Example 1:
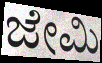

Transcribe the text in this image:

ಜೇಮಿ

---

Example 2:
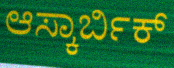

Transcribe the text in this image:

ಆಸ್ಕಾರ್ಬಿಕ್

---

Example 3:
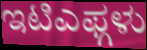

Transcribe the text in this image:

ಇಟಿಎಫ್ಗಳು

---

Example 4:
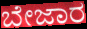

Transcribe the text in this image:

ಬೇಜಾರ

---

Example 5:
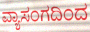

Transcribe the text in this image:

ವ್ಯಾಸಂಗದಿಂದ